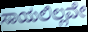
ಸಾಯಲಿಲ್ಲವೇ